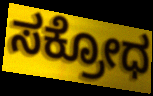
ಸಕ್ರೋಧ